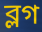
ব্লগ